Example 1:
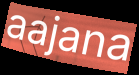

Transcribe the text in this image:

aajana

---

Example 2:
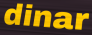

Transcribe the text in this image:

dinar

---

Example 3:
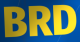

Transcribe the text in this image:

BRD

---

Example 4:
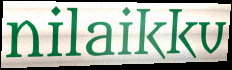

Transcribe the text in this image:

nilaikku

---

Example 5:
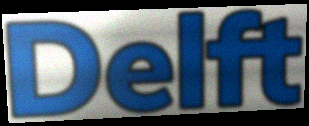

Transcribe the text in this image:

Delft